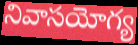
నివాసయోగ్య